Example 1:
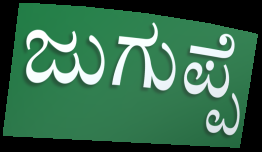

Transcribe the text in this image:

ಜುಗುಪ್ಪೆ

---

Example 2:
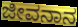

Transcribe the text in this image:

ಜೀವನಾನ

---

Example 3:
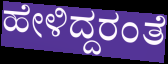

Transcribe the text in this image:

ಹೇಳಿದ್ದರಂತೆ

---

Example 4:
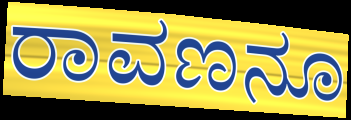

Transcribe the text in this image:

ರಾವಣನೂ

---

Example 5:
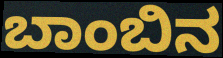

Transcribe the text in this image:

ಬಾಂಬಿನ